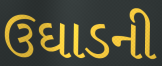
ઉઘાડની